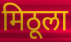
मिठूला